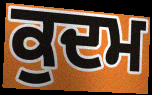
ਕੁਦਮ